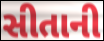
સીતાની